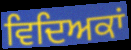
ਵਿਦਿਅਕਾਂ